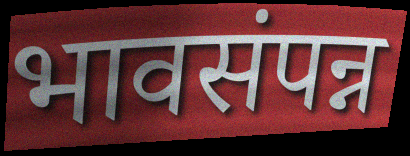
भावसंपन्न